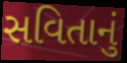
સવિતાનું